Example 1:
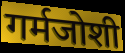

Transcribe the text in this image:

गर्मजोशी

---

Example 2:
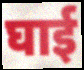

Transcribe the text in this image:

घाई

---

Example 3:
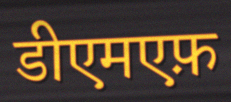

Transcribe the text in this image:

डीएमएफ़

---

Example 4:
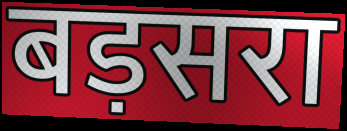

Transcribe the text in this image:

बड़सरा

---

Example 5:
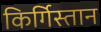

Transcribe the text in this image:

किर्गिस्तान